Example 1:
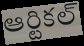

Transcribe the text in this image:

ఆర్టికల్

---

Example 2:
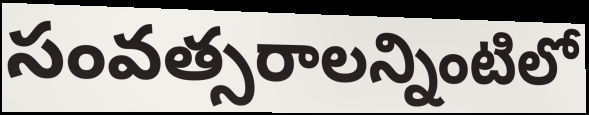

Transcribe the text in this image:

సంవత్సరాలన్నింటిలో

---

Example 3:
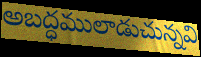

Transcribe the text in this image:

అబద్ధములాడుచున్నవి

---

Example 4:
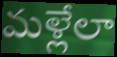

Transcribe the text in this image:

మళ్లేలా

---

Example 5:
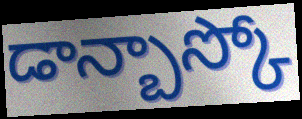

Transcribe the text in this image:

డాన్బాస్కో